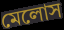
মেলোস